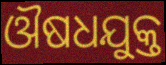
ଔଷଧଯୁକ୍ତ